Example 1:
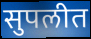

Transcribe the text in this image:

सुपलीत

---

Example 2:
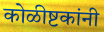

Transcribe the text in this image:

कोळीष्टकांनी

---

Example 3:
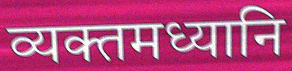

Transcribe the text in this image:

व्यक्तमध्यानि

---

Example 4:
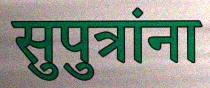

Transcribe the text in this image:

सुपुत्रांना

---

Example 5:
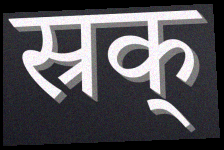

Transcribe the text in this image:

स्रक्